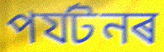
পৰ্যটনৰ